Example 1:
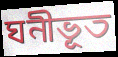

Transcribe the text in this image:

ঘনীভূত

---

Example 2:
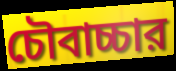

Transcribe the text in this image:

চৌবাচ্চার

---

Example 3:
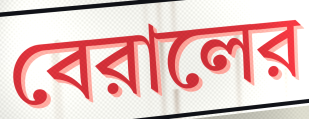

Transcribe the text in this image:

বেরালের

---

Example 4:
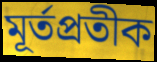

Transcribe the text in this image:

মূর্তপ্রতীক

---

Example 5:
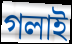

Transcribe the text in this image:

গলাই